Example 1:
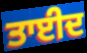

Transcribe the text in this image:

ਤਾਈਦ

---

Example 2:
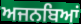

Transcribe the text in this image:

ਅਜਨਬਿਆਂ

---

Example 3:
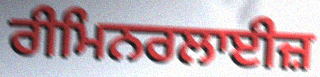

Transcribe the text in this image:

ਰੀਮਿਨਰਲਾਈਜ਼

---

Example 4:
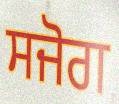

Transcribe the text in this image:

ਸਜੋਗ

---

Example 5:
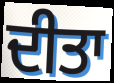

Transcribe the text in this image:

ਦੀਤਾ